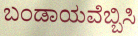
ಬಂಡಾಯವೆಬ್ಬಿಸಿ